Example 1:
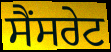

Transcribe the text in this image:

ਸੈਂਸਰੇਟ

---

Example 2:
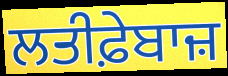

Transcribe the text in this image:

ਲਤੀਫ਼ੇਬਾਜ਼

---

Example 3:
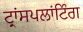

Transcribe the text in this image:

ਟ੍ਰਾਂਸਪਲਾਂਟਿੰਗ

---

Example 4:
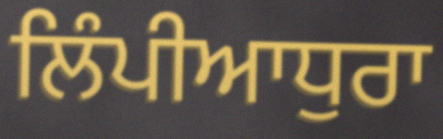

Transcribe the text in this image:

ਲਿੰਪੀਆਧੁਰਾ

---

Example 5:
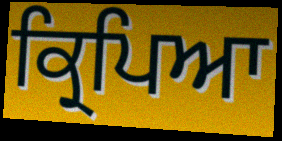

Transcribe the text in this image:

ਕ੍ਰਿਪਿਆ